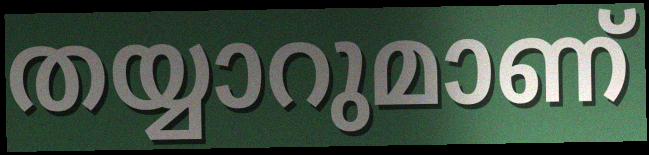
തയ്യാറുമാണ്